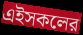
এইসকলের